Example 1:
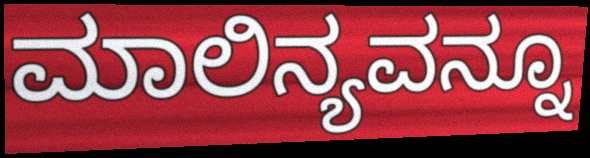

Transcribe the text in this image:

ಮಾಲಿನ್ಯವನ್ನೂ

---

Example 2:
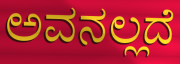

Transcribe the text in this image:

ಅವನಲ್ಲದೆ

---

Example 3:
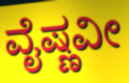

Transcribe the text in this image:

ವೈಷ್ಣವೀ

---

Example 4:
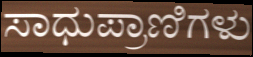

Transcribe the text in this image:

ಸಾಧುಪ್ರಾಣಿಗಳು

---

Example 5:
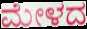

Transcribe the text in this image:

ಮೇಳದ